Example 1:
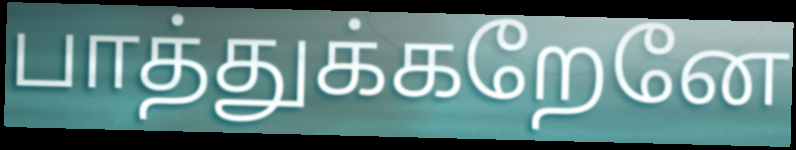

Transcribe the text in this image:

பாத்துக்கறேனே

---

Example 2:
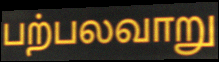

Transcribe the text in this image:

பற்பலவாறு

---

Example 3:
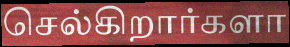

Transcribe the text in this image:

செல்கிறார்களா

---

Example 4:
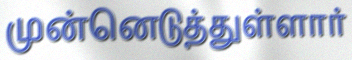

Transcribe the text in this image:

முன்னெடுத்துள்ளார்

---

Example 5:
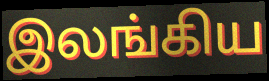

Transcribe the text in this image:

இலங்கிய